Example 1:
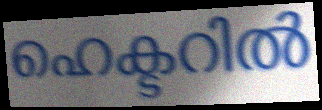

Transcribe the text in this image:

ഹെക്ടറിൽ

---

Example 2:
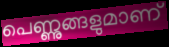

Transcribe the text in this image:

പെണ്ണുങ്ങളുമാണ്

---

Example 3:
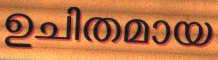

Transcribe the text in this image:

ഉചിതമായ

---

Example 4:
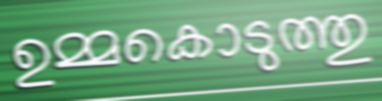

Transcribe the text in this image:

ഉമ്മകൊടുത്തു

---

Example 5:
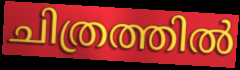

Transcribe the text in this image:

ചിത്രത്തിൽ